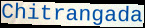
Chitrangada